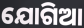
ଯୋଗିଆ